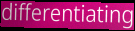
differentiating